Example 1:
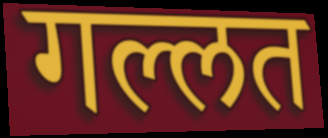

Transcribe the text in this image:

गल्लत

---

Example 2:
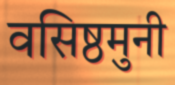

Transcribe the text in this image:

वसिष्ठमुनी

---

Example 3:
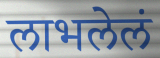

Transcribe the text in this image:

लाभलेलं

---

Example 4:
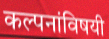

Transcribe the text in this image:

कल्पनांविषयी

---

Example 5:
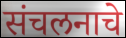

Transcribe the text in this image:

संचलनाचे